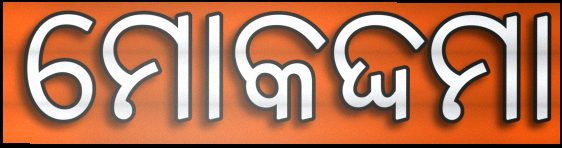
ମୋକଦ୍ଦମା